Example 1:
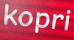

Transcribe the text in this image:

kopri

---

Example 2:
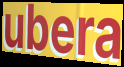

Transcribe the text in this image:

ubera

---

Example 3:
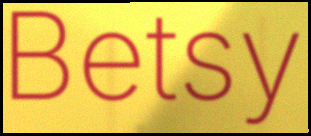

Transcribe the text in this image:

Betsy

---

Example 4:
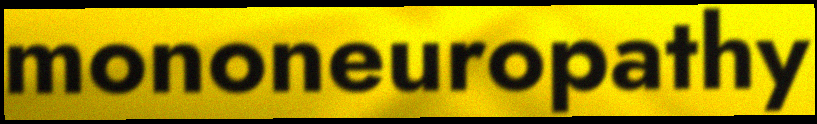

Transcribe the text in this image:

mononeuropathy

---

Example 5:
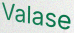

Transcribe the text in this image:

Valase